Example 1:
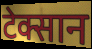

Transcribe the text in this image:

टेक्सान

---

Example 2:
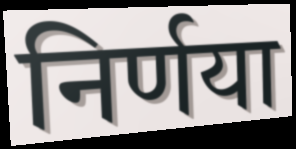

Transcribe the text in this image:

निर्णया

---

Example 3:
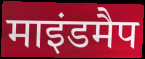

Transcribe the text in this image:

माइंडमैप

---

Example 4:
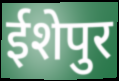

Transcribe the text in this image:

ईशेपुर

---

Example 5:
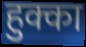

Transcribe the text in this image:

हुक्का